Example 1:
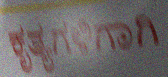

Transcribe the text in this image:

ಕೃತ್ಯಗಳಿಗಾಗಿ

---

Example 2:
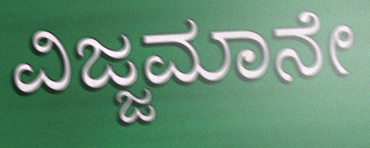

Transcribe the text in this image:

ವಿಜ್ಜಮಾನೇ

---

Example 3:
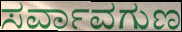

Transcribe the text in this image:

ಸರ್ವಾವಗುಣ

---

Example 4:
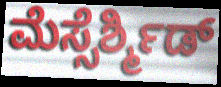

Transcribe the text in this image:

ಮೆಸ್ಸೆರ್ಶ್ಮಿಡ್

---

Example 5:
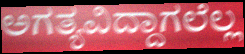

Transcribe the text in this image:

ಅಗತ್ಯವಿದ್ದಾಗಲೆಲ್ಲ